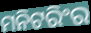
ମନିଟରିଂର